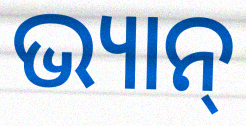
ଭ୍ୟାନ୍